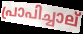
പ്രാപിച്ചാല്